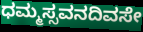
ಧಮ್ಮಸ್ಸವನದಿವಸೇ